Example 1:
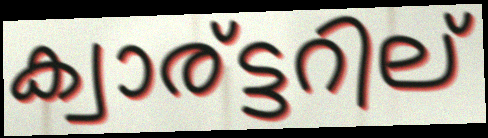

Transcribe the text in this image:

ക്വാര്ട്ടറില്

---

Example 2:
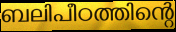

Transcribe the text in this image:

ബലിപീഠത്തിന്റെ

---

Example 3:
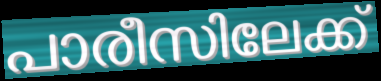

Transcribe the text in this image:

പാരീസിലേക്ക്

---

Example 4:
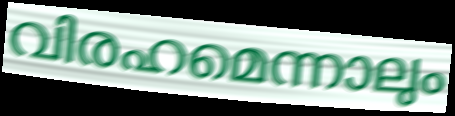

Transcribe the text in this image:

വിരഹമെന്നാലും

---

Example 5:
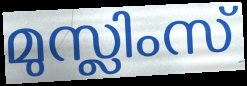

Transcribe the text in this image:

മുസ്ലിംസ്